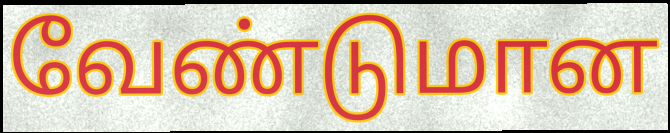
வேண்டுமான